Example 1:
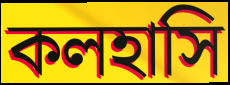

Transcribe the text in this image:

কলহাসি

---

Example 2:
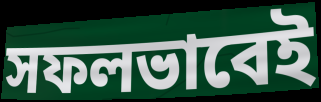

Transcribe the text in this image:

সফলভাবেই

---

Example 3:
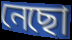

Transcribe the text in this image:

নেছো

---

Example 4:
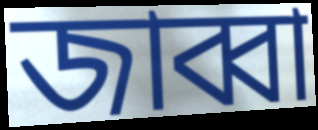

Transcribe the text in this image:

জাব্বা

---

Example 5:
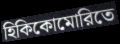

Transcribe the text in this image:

হিকিকোমোরিতে